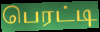
பெரட்டி